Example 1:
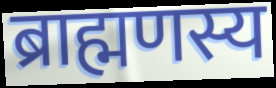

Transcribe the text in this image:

ब्राह्मणस्य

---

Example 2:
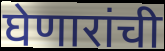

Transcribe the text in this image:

घेणारांची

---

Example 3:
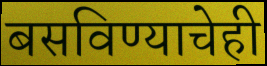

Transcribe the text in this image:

बसविण्याचेही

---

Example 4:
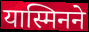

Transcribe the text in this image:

यास्मिनने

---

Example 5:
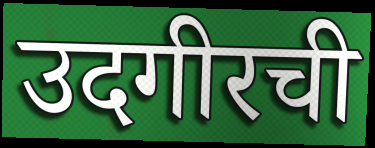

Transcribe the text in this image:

उदगीरची